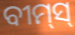
ବୀମ୍‌ସ୍